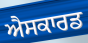
ਐਸਕਾਰਡ